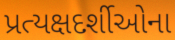
પ્રત્યક્ષદર્શીઓના